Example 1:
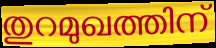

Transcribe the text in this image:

തുറമുഖത്തിന്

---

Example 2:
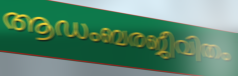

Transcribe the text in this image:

ആഡംബരജീവിതം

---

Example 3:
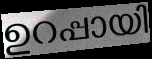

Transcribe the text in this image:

ഉറപ്പായി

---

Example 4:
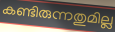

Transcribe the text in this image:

കണ്ടിരുന്നതുമില്ല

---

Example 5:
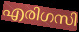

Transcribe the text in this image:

എരിഗസി